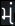
મં